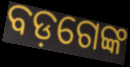
ବଡ଼ଗେଙ୍କ